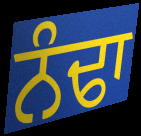
ਨੰਢਾ